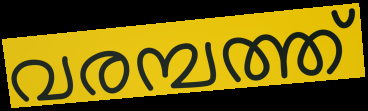
വരമ്പത്ത്